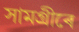
সামগ্ৰীৰে